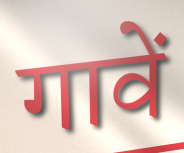
गावें